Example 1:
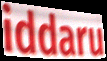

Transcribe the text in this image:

iddaru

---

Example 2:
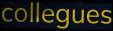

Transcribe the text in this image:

collegues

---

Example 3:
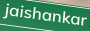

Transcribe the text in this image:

jaishankar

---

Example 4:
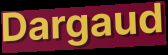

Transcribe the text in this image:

Dargaud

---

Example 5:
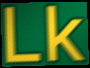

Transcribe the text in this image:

Lk